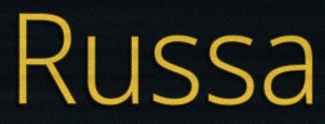
Russa